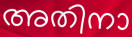
അതിനാ